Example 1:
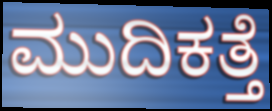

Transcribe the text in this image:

ಮುದಿಕತ್ತೆ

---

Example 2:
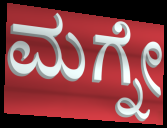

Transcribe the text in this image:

ಮಗ್ನೇ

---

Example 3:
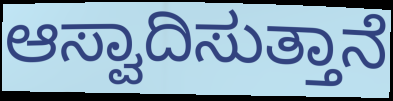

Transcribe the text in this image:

ಆಸ್ವಾದಿಸುತ್ತಾನೆ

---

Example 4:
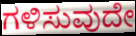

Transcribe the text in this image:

ಗಳಿಸುವುದೇ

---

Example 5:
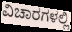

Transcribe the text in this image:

ವಿಚಾರಗಳಲ್ಲಿ